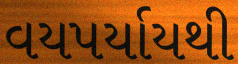
વયપર્યાયથી